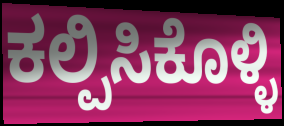
ಕಲ್ಪಿಸಿಕೊಳ್ಳಿ